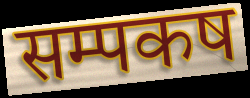
सम्पकष